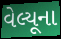
વેલ્યૂના